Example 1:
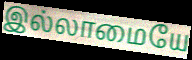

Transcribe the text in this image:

இல்லாமையே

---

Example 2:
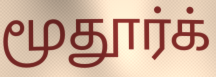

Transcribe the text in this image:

மூதூர்க்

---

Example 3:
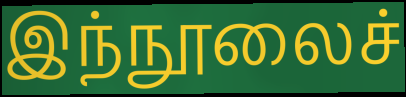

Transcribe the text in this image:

இந்நூலைச்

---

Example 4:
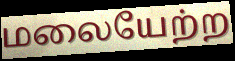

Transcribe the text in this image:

மலையேற்ற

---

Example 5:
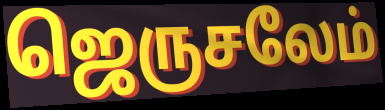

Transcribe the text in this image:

ஜெருசலேம்